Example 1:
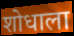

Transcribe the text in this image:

शोधाला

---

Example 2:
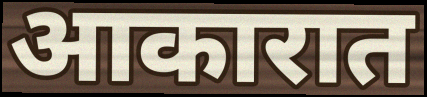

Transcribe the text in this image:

आकारात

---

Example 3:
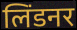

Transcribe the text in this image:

लिंडनर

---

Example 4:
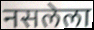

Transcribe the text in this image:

नसलेला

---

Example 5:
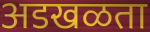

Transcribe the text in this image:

अडखळता